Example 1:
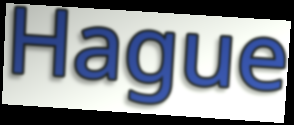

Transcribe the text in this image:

Hague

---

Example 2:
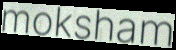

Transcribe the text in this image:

moksham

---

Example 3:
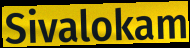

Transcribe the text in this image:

Sivalokam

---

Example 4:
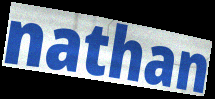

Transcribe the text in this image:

nathan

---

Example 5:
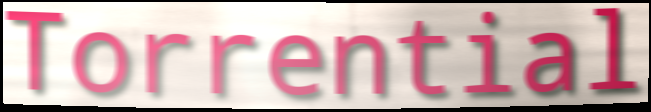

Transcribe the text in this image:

Torrential